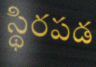
స్థిరపడ